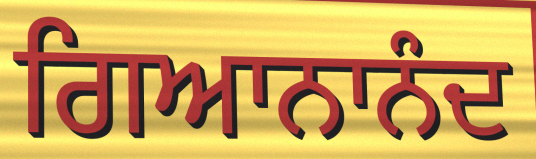
ਗਿਆਨਾਨੰਦ